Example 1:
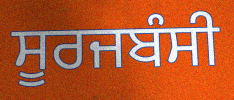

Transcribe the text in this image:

ਸੂਰਜਬੰਸੀ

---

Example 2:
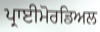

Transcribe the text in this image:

ਪ੍ਰਾਈਮੋਰਡਿਅਲ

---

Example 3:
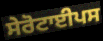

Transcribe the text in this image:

ਸੇਰੋਟਾਈਪਸ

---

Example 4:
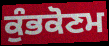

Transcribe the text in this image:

ਕੁੰਭਕੋਣਮ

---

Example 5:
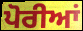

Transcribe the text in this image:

ਪੋਰੀਆਂ